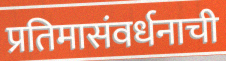
प्रतिमासंवर्धनाची